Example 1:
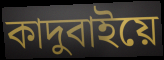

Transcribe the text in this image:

কাদুবাইয়ে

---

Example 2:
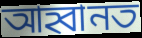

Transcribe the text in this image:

আহ্বানত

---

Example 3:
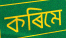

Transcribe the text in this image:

কৰিমে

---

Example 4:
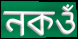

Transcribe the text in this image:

নকওঁ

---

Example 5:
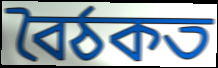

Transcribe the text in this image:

বৈঠকত